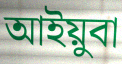
আইয়ুবা